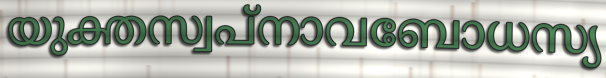
യുക്തസ്വപ്നാവബോധസ്യ